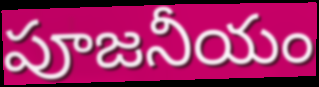
పూజనీయం